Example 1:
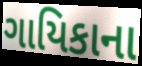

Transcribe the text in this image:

ગાયિકાના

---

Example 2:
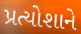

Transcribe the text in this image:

પ્રત્યોશાને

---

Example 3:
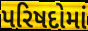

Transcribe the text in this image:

પરિષદોમાં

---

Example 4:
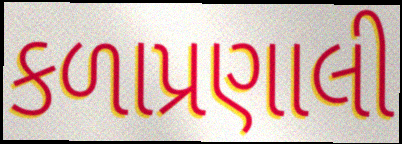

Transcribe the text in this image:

કળાપ્રણાલી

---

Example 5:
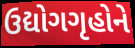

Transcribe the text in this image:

ઉદ્યોગગૃહોને